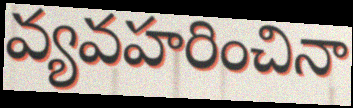
వ్యవహరించినా